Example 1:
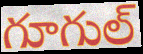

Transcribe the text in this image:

గూగుల్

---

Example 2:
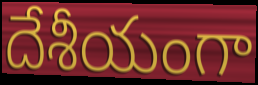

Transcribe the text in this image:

దేశీయంగా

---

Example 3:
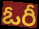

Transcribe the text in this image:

ఓరీ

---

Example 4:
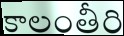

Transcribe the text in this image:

కాలంతీరి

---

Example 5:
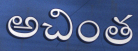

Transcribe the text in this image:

అచింత